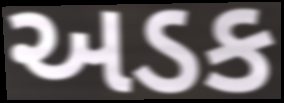
અડક